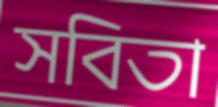
সবিতা